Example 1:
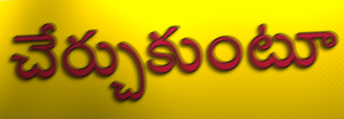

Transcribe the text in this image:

చేర్చుకుంటూ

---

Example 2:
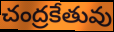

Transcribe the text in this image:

చంద్రకేతువు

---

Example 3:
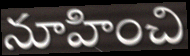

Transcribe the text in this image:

నూహించి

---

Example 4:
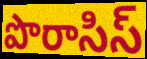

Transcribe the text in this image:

పొరాసిస్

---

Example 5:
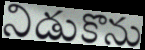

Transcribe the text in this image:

నిడుకొను